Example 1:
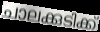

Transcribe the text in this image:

ചാലക്കുടിക്ക്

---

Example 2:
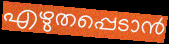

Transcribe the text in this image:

എഴുതപ്പെടാൻ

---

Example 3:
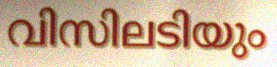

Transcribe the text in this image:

വിസിലടിയും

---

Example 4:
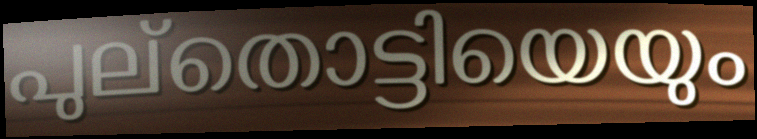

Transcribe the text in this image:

പുല്തൊട്ടിയെയും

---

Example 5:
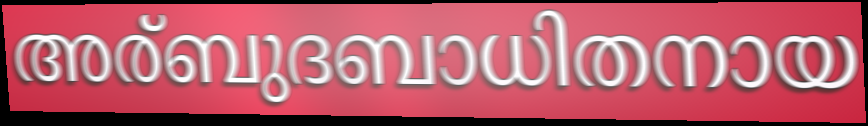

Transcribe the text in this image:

അര്ബുദബാധിതനായ